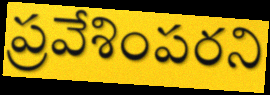
ప్రవేశింపరని